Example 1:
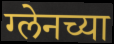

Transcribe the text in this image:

ग्लेनच्या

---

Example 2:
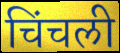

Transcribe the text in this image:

चिंचली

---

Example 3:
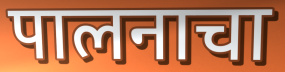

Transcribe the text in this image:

पालनाचा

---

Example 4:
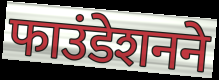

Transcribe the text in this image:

फाउंडेशनने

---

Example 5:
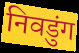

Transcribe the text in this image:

निवडुंग